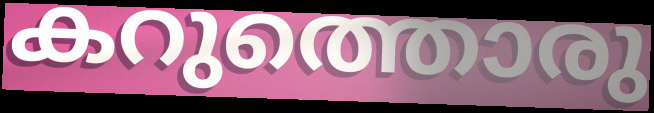
കറുത്തൊരു